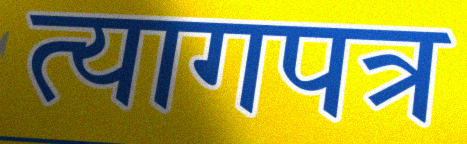
त्‍यागपत्र